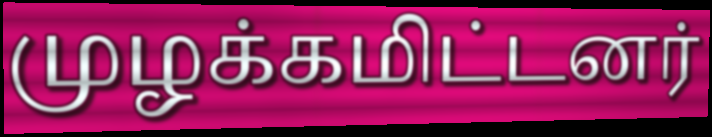
முழக்கமிட்டனர்